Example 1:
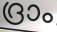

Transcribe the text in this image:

ദ്രാം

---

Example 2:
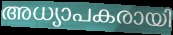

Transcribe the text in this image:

അധ്യാപകരായി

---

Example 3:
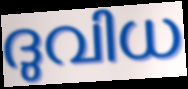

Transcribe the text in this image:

ദുവിധ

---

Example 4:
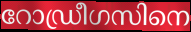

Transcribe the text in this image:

റോഡ്രീഗസിനെ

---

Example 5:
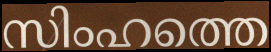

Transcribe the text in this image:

സിംഹത്തെ